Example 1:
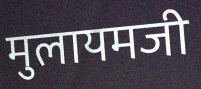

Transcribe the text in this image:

मुलायमजी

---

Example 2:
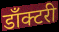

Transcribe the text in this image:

डाँक्टरी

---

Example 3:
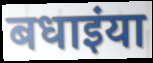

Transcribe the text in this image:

बधाइंया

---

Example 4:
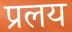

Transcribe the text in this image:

प्रलय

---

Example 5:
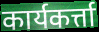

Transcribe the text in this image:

कार्यकर्त्ता